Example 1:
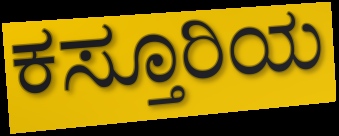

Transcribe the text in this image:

ಕಸ್ತೂರಿಯ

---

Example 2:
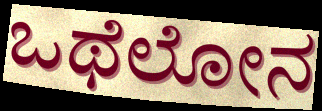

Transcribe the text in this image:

ಒಥೆಲೋನ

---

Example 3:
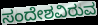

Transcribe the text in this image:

ಸಂದೇಶವಿರುವ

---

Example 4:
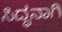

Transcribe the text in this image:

ಸಿದ್ಧನಾಗಿ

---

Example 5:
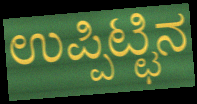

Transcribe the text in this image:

ಉಪ್ಪಿಟ್ಟಿನ